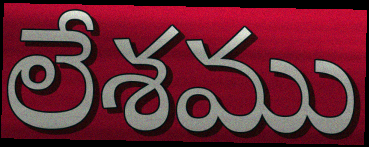
లేశము